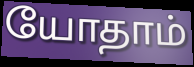
யோதாம்